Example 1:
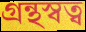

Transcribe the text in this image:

গ্রন্থস্বত্ব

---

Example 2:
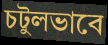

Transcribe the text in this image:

চটুলভাবে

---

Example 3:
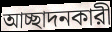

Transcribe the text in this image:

আচ্ছাদনকারী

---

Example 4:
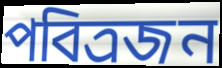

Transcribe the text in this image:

পবিত্রজন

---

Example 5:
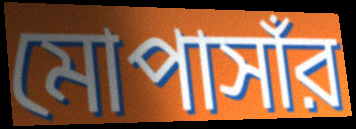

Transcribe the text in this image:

মোপাসাঁর